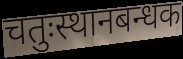
चतुःस्थानबन्धक